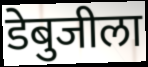
डेबुजीला